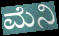
ಮೆನಿ